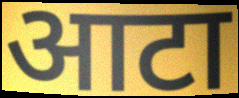
आटा